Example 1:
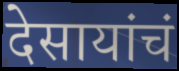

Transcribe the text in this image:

देसायांचं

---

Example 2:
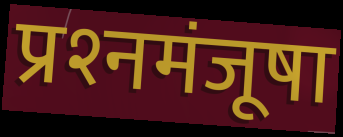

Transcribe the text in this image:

प्रश्नमंजूषा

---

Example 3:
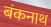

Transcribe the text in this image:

बंकनाथ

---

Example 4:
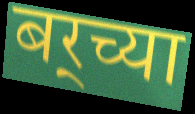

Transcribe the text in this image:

बर्च्या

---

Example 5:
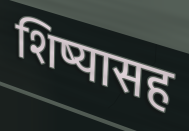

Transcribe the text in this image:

शिष्यासह